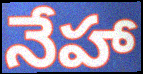
నేహా